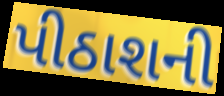
પીઠાશની